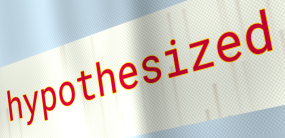
hypothesized